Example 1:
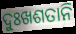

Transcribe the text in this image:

ଦୁଃଖଶତାନି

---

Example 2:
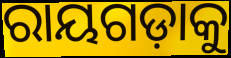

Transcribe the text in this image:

ରାୟଗଡ଼ାକୁ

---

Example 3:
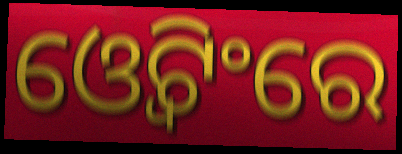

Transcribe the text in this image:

ଓ୍ୱେଟିଂରେ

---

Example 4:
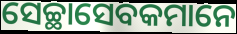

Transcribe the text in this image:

ସେଚ୍ଛାସେବକମାନେ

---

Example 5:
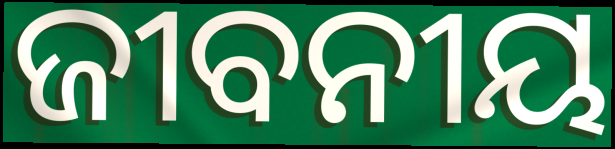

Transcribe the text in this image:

ଜୀବନୀୟ